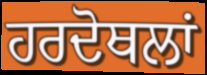
ਹਰਦੋਥਲਾਂ